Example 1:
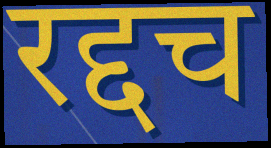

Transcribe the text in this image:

रद्दच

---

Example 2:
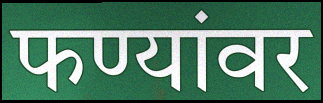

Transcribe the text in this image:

फण्यांवर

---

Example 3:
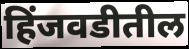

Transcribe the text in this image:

हिंजवडीतील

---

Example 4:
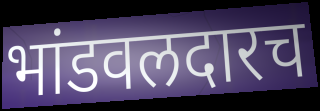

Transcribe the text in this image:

भांडवलदारच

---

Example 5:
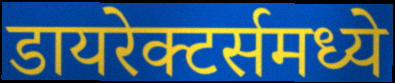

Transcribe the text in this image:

डायरेक्टर्समध्ये